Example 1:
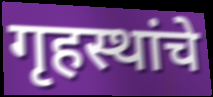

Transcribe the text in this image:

गृहस्थांचे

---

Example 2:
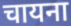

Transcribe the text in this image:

चायना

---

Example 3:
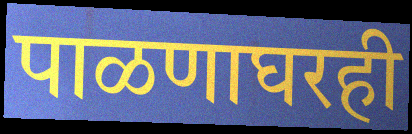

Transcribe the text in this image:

पाळणाघरही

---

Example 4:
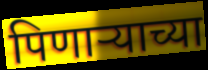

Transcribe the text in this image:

पिणाऱ्याच्या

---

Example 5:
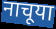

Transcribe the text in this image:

नाचूया